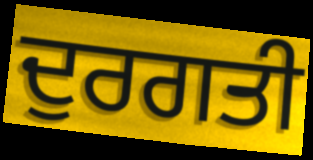
ਦੁਰਗਤੀ